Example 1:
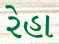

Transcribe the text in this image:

રેહા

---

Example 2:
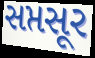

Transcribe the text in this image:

સપ્તસૂર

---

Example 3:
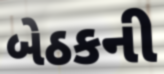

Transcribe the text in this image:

બેઠકની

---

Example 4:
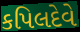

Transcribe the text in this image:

કપિલદેવે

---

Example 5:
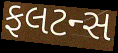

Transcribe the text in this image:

ફલટન્સ